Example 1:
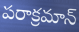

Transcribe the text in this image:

పరాక్రమాన్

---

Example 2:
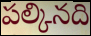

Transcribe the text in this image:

పల్కినది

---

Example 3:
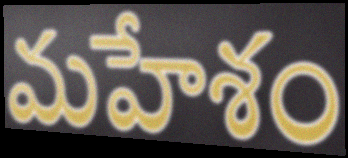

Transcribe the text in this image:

మహేశం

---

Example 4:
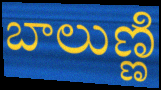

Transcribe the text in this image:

బాలుణ్ణి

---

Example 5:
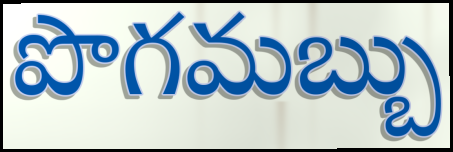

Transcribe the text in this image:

పొగమబ్బు